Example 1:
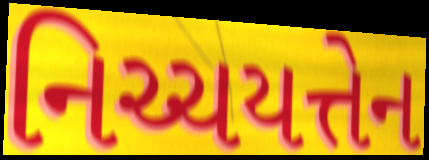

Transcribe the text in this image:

નિચ્ચયત્તેન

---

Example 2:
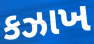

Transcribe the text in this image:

કઝાખ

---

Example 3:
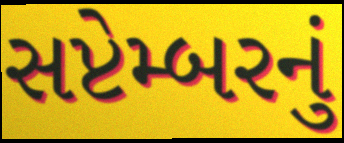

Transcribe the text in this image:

સપ્ટેમ્બરનું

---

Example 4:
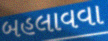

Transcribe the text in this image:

બહલાવવા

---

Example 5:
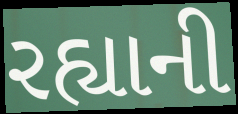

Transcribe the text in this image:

રહ્યાની